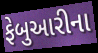
ફેબુઆરીના